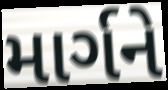
માર્ગને